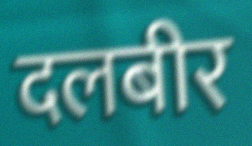
दलबीर